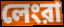
লেংরা